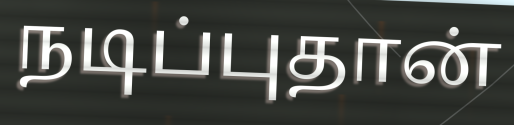
நடிப்புதான்